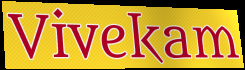
Vivekam